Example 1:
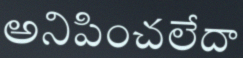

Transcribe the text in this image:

అనిపించలేదా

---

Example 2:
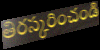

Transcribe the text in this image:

తిరస్కరించండి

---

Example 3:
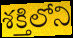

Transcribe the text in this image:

శక్తిలోని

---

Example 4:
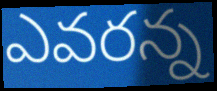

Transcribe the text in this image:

ఎవరన్న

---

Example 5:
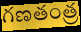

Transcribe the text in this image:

గణతంత్ర